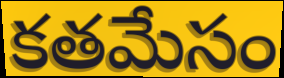
కతమేసం